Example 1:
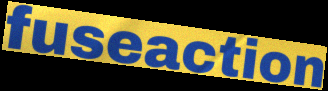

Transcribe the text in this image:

fuseaction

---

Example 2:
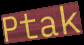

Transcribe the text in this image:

Ptak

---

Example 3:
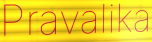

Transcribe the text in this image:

Pravalika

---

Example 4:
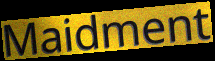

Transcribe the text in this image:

Maidment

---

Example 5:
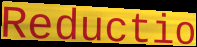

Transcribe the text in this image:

Reductio